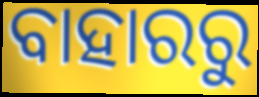
ବାହାରରୁ